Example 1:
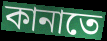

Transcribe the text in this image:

কানাতে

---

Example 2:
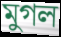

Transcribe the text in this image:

মুগল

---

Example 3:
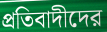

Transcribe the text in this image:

প্রতিবাদীদের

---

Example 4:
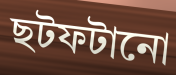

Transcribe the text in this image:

ছটফটানো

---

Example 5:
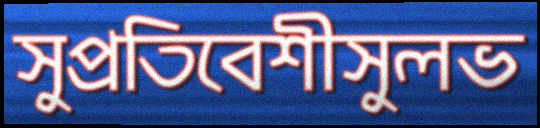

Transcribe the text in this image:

সুপ্রতিবেশীসুলভ